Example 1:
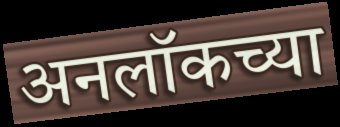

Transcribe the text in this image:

अनलॉकच्या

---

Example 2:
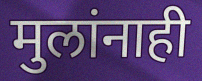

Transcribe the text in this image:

मुलांनाही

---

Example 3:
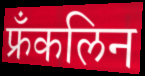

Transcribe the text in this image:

फ्रँकलिन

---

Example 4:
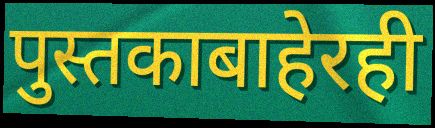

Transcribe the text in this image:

पुस्तकाबाहेरही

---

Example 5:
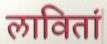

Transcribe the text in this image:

लावितां